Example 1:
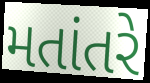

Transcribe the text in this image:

મતાંતરે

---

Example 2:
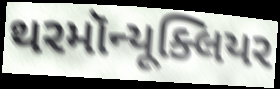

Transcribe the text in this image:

થરમૉન્યૂક્લિયર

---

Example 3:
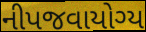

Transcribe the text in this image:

નીપજવાયોગ્ય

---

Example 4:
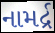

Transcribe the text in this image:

નામર્દ્ર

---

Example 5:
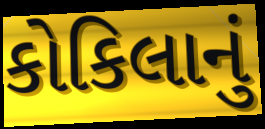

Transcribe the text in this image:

કોકિલાનું